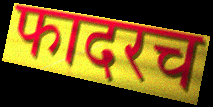
फादरच